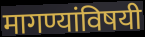
मागण्यांविषयी